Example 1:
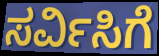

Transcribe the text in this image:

ಸರ್ವಿಸಿಗೆ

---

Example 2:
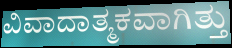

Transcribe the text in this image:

ವಿವಾದಾತ್ಮಕವಾಗಿತ್ತು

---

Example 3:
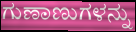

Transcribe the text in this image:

ಗುಣಾಣುಗಳನ್ನು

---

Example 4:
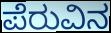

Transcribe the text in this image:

ಪೆರುವಿನ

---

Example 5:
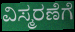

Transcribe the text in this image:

ವಿಸ್ಮರಣೆಗೆ